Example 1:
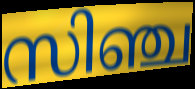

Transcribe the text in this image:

സിഞ്ച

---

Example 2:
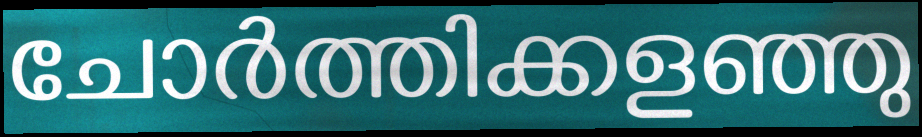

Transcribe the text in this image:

ചോർത്തിക്കളഞ്ഞു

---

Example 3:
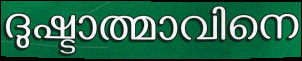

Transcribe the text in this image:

ദുഷ്ടാത്മാവിനെ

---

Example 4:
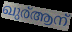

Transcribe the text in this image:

ഖുര്ആന്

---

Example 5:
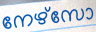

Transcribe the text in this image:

നേഴ്സോ